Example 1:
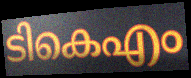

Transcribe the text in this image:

ടികെഎം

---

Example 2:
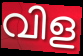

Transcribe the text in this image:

വിള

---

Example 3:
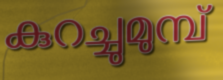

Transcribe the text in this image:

കുറച്ചുമുമ്പ്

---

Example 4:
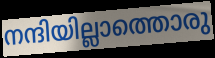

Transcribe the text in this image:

നന്ദിയില്ലാത്തൊരു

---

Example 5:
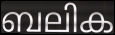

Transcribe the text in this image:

ബലിക